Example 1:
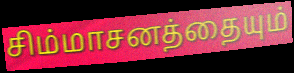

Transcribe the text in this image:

சிம்மாசனத்தையும்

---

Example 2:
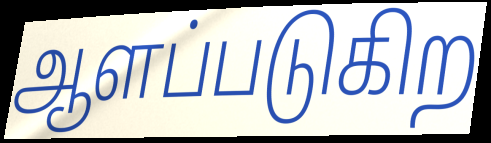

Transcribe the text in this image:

ஆளப்படுகிற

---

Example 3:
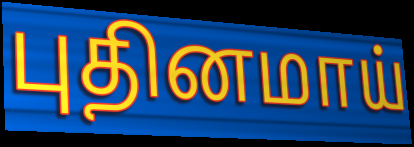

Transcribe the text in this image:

புதினமாய்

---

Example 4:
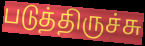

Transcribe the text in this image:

படுத்திருச்சு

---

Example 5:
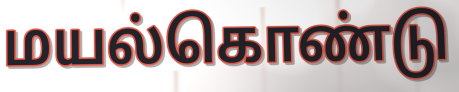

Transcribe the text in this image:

மயல்கொண்டு